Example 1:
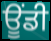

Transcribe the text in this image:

ਊਂਡੀ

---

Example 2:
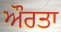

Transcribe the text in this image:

ਔਰਤਾ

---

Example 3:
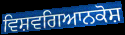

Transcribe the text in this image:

ਵਿਸ਼ਵਗਿਆਨਕੋਸ਼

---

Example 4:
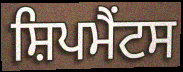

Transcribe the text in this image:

ਸ਼ਿਪਮੈਂਟਸ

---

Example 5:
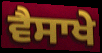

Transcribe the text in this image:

ਵੈਸਾਖੇ